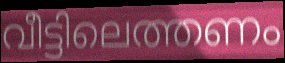
വീട്ടിലെത്തണം